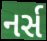
નર્સ